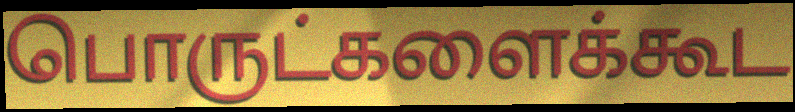
பொருட்களைக்கூட